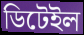
ডিটেইল